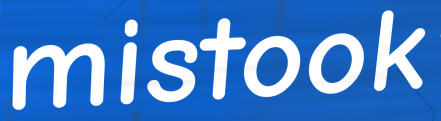
mistook